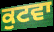
ਕੁਟਵਾ